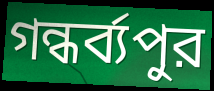
গন্ধর্ব্যপুর